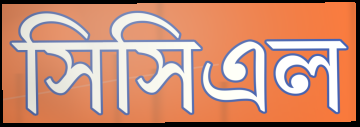
সিসিএল